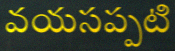
వయసప్పటి